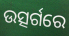
ଉତ୍ସର୍ଗରେ